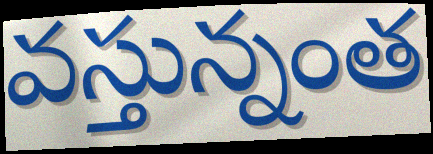
వస్తున్నంత